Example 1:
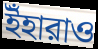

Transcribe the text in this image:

ইঁহারাও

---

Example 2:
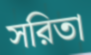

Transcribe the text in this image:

সরিতা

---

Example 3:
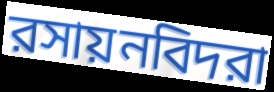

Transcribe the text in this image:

রসায়নবিদরা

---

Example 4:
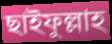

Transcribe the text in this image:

ছাইফুল্লাহ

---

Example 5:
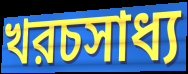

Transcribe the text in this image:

খরচসাধ্য